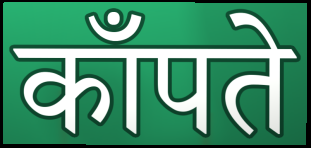
काँपते